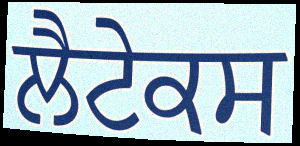
ਲੈਟੇਕਸ